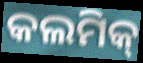
କଲମିକ୍